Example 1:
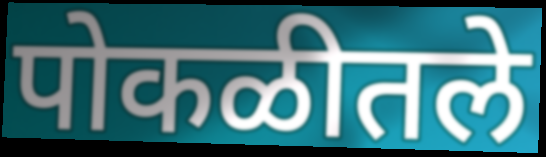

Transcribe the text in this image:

पोकळीतले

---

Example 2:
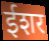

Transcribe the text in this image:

ईशर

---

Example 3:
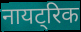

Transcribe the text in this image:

नायट्रिक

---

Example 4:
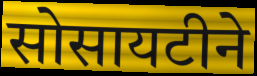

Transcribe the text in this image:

सोसायटीने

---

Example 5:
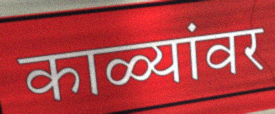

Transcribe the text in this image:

काळ्यांवर